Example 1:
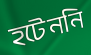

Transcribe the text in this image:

হটেননি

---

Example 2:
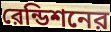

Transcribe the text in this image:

রেন্ডিশনের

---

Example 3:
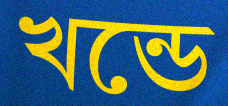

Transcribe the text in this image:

খন্ডে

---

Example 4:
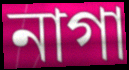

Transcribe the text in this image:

নাগা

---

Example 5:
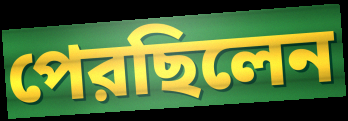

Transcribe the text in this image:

পেরছিলেন